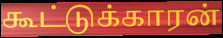
கூட்டுக்காரன்